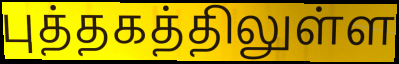
புத்தகத்திலுள்ள